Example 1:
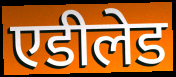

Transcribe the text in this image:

एडीलेड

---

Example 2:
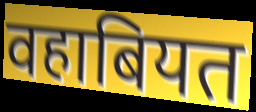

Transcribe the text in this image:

वहाबियत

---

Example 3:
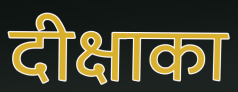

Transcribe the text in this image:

दीक्षाका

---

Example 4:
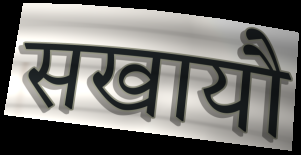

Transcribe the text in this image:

सखायौ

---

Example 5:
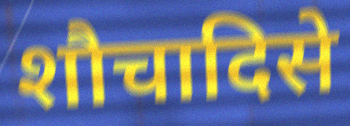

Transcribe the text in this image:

शौचादिसे